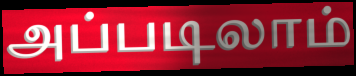
அப்படிலாம்